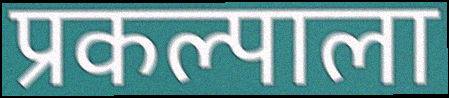
प्रकल्पाला